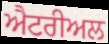
ਐਟਰੀਅਲ